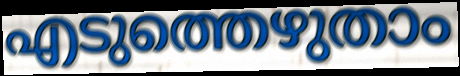
എടുത്തെഴുതാം